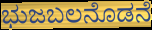
ಭುಜಬಲನೊಡನೆ